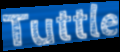
Tuttle